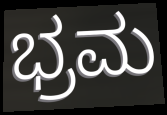
ಭ್ರಮ